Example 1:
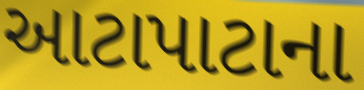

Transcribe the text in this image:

આટાપાટાના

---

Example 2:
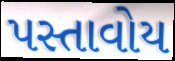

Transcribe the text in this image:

પસ્તાવોય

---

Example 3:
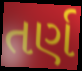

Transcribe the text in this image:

તર્ણ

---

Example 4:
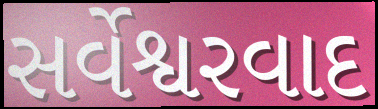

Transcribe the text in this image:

સર્વેશ્વરવાદ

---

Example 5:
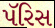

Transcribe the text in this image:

પૅરિસ